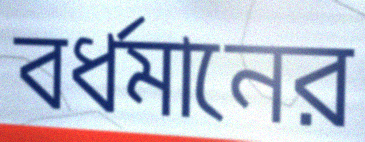
বর্ধমানের